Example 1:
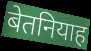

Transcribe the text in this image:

बेतनियाह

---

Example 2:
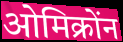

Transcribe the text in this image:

ओमिक्रोंन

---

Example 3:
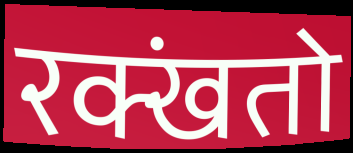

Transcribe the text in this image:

रक्खंतो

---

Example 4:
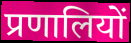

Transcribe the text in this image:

प्रणालियों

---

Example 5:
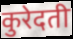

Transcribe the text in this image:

कुरेदती